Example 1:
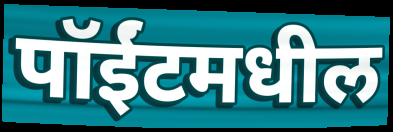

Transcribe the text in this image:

पॉईंटमधील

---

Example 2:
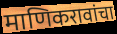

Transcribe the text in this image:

माणिकरावांचा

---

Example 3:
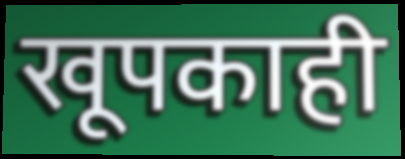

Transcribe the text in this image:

खूपकाही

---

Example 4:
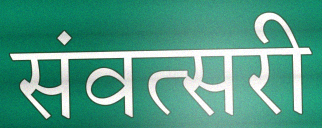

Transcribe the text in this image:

संवत्सरी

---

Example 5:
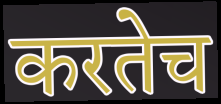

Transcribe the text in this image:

करतेच